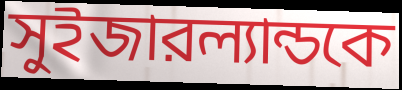
সুইজারল্যান্ডকে